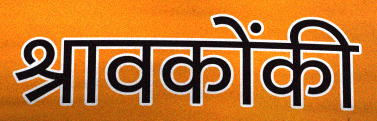
श्रावकोंकी